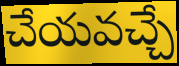
చేయవచ్చే